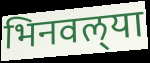
भिनवल्या